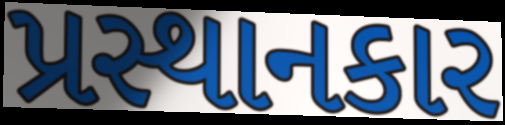
પ્રસ્થાનકાર